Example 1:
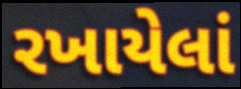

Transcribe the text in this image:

રખાયેલાં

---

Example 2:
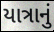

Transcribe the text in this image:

યાત્રાનું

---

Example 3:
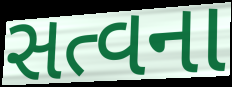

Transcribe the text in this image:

સત્વના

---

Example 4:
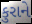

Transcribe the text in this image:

કુરાને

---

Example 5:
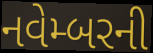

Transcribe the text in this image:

નવેમ્બરની